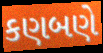
કણબણે